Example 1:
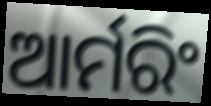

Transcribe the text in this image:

ଆର୍ମରିଂ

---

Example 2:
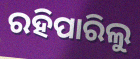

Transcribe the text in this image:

ରହିପାରିଲୁ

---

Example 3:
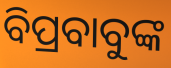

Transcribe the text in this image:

ବିପ୍ରବାବୁଙ୍କ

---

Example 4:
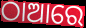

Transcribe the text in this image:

ଠାଆରେ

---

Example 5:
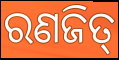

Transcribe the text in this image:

ରଣଜିତ୍